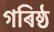
গৰিষ্ঠ